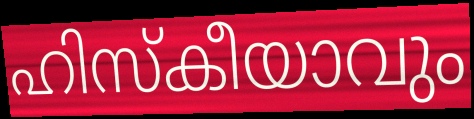
ഹിസ്കീയാവും